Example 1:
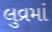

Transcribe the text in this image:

લુવ્રમાં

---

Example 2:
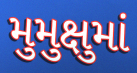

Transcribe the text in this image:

મુમુક્ષુમાં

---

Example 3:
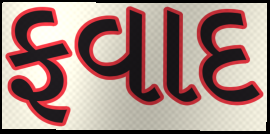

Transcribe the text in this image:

ફવાદ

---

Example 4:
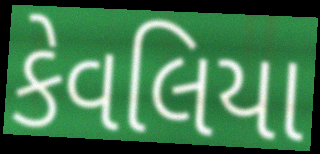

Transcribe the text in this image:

કેવલિયા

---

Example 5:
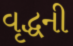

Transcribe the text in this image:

વૃદ્ધની